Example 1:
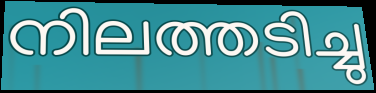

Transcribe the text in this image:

നിലത്തടിച്ചു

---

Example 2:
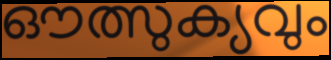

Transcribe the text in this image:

ഔത്സുക്യവും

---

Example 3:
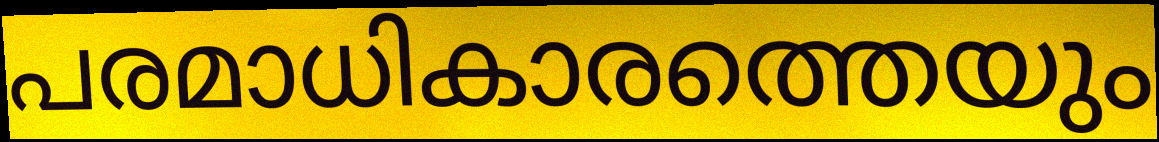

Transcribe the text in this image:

പരമാധികാരത്തെയും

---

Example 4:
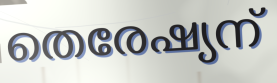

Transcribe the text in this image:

തെരേഷ്യന്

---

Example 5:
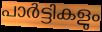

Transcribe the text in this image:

പാർട്ടികളും